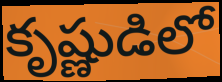
కృష్ణుడిలో